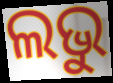
ଲଭୁ